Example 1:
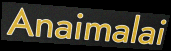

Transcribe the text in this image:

Anaimalai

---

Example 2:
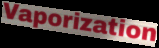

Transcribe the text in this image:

Vaporization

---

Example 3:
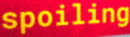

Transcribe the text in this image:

spoiling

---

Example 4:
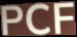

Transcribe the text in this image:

PCF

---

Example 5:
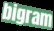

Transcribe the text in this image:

bigram